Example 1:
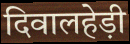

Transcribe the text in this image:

दिवालहेड़ी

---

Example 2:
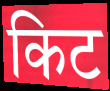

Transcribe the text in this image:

किट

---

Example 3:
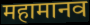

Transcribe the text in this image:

महामानव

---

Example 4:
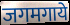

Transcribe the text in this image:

जगमगाये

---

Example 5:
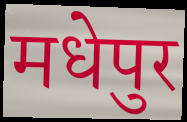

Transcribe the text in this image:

मधेपुर